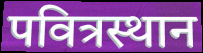
पवित्रस्‍थान